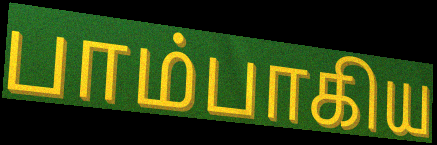
பாம்பாகிய